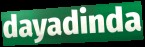
dayadinda